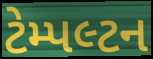
ટેમ્પલ્ટન